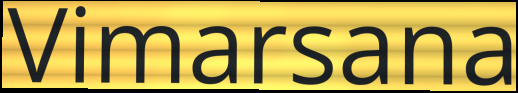
Vimarsana